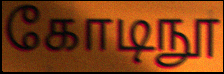
கோடிநூ